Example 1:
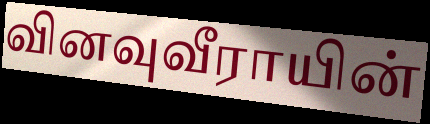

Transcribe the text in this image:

வினவுவீராயின்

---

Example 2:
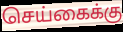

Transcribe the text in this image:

செய்கைக்கு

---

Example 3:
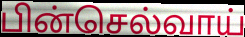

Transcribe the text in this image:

பின்செல்வாய்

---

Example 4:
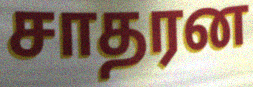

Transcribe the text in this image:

சாதரன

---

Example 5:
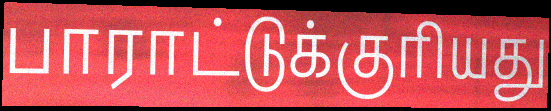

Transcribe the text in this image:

பாராட்டுக்குரியது